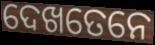
ଦେଖତେନେ